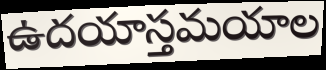
ఉదయాస్తమయాల